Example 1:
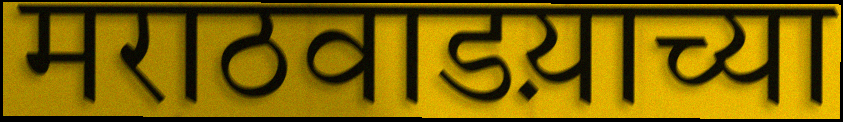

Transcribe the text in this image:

मराठवाडय़ाच्या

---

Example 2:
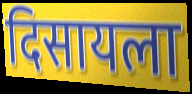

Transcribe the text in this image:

दिसायला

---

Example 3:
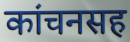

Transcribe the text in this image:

कांचनसह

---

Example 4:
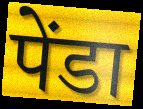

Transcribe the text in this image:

पेंडा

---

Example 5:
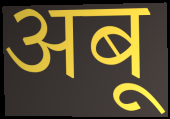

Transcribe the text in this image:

अबू